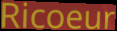
Ricoeur